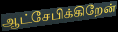
ஆட்சேபிக்கிறேன்